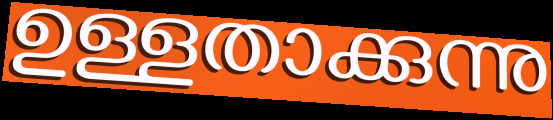
ഉള്ളതാക്കുന്നു